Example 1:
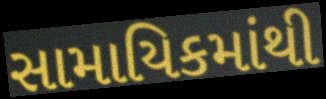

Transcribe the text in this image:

સામાયિકમાંથી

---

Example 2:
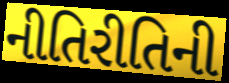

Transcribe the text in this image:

નીતિરીતિની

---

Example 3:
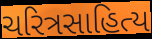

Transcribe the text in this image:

ચરિત્રસાહિત્ય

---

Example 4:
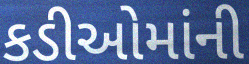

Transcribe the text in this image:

કડીઓમાંની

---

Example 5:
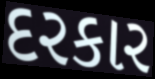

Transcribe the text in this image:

દરકાર